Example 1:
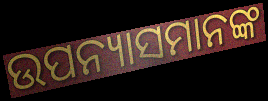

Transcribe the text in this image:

ଉପନ୍ୟାସମାନଙ୍କ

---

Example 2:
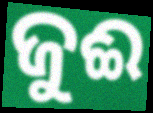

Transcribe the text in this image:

ଜୁଈ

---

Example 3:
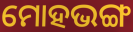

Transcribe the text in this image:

ମୋହଭଙ୍ଗ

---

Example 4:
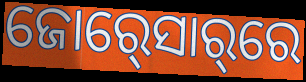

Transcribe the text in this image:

ଜୋର୍‍ସୋର୍‌ରେ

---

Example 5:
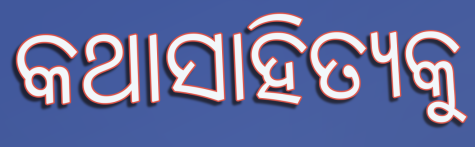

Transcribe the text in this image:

କଥାସାହିତ୍ୟକୁ